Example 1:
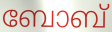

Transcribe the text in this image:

ബോബ്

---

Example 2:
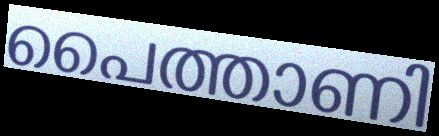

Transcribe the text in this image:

പൈത്താണി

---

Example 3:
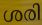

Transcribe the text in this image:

ശരി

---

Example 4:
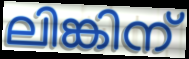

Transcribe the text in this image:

ലിങ്കിന്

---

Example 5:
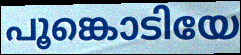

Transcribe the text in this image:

പൂങ്കൊടിയേ